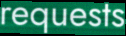
requests